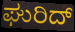
ಘುರಿದ್